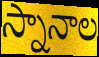
స్నానాల